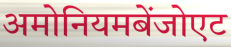
अमोनियमबेंजोएट